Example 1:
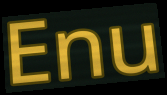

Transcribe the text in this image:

Enu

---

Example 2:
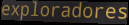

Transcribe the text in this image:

exploradores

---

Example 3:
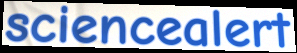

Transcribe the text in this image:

sciencealert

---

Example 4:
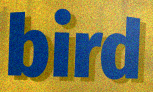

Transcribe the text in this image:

bird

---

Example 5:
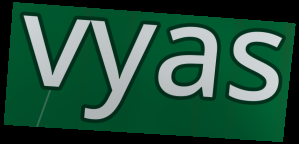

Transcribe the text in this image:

vyas